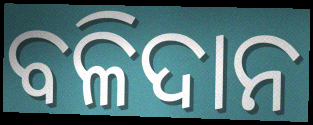
ବଳିଦାନ